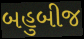
બહુબીજ